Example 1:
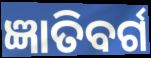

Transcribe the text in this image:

ଜ୍ଞାତିବର୍ଗ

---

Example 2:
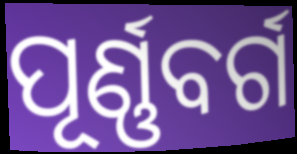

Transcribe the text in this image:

ପୂର୍ଣ୍ଣବର୍ଗ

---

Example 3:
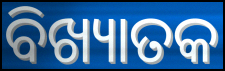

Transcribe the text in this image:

ବିଖ୍ୟାତକ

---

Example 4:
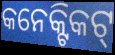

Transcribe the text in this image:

କନେକ୍ଟିକଟ୍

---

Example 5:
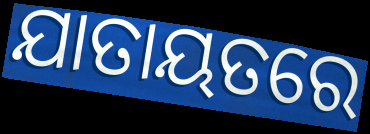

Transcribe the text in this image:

ଯାତାୟତରେ